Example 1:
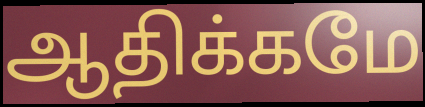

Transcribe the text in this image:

ஆதிக்கமே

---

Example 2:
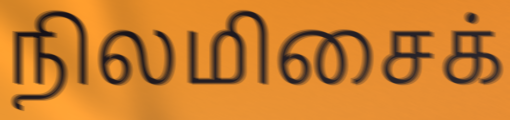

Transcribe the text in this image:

நிலமிசைக்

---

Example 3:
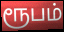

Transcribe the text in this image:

ரூபம்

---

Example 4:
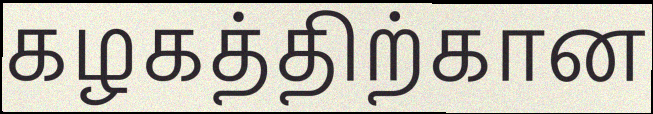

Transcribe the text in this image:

கழகத்திற்கான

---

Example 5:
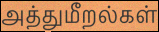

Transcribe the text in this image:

அத்துமீறல்கள்